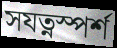
সযত্নস্পর্শ